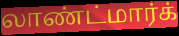
லாண்ட்மார்க்